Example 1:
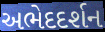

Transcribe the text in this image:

અભેદદર્શન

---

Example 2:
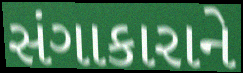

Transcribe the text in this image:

સંગાકારાને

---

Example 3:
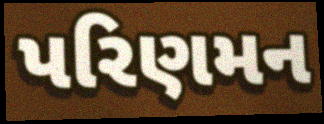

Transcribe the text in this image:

પરિણમન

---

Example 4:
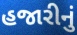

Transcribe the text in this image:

હજારીનું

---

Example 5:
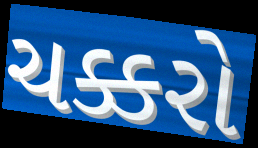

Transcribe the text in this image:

ચક્કરો